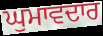
ਘੁਮਾਵਦਾਰ